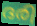
ദരി